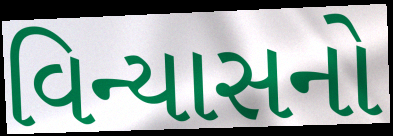
વિન્યાસનો